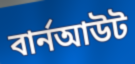
বার্নআউট